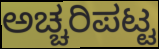
ಅಚ್ಚರಿಪಟ್ಟ